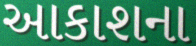
આકાશના